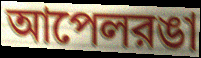
আপেলরঙা